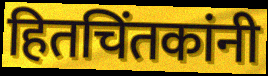
हितचिंतकांनी